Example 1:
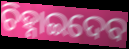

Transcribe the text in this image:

ଚିହ୍ନାଇଦେବ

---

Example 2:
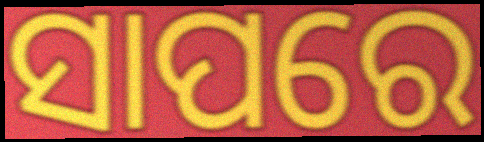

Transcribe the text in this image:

ସାପରେ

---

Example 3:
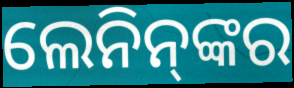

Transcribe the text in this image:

ଲେନିନ୍‌ଙ୍କର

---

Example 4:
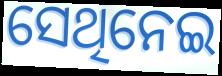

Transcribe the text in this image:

ସେଥିନେଇ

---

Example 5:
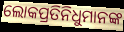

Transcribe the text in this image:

ଲୋକପ୍ରତିନିଧୁମାନଙ୍କ